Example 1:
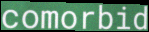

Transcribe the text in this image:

comorbid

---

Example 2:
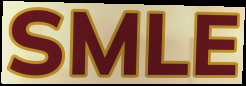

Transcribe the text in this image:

SMLE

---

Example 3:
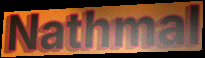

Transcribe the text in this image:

Nathmal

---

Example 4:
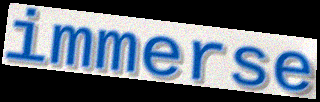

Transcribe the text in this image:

immerse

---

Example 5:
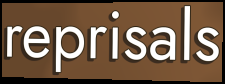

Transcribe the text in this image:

reprisals